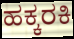
ಹಕ್ಕರಕಿ